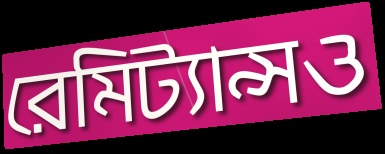
রেমিট্যান্সও